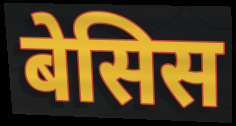
बेसिस